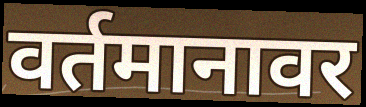
वर्तमानावर